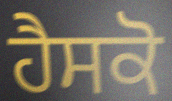
ਹੈਸਕੋ